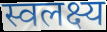
स्वलक्ष्य